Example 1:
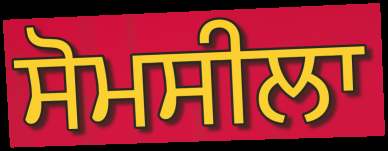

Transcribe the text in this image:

ਸੋਮਸੀਲਾ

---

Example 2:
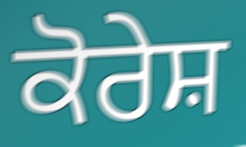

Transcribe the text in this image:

ਕੋਰੇਸ਼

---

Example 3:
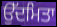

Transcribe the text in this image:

ਉੱਦਮਿਤਾ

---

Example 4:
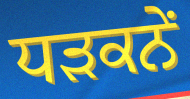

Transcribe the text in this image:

ਧੜਕਨੇਂ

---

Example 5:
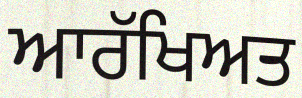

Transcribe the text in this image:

ਆਰੱਖਿਅਤ